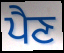
ਪੈਣ